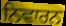
ਨਿਵਾਰਨ